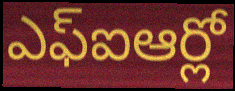
ఎఫ్ఐఆర్లో